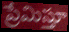
ప్రేమిస్తూ